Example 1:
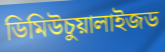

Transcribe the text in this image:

ডিমিউচুয়ালাইজড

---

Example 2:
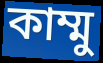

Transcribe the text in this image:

কাম্মু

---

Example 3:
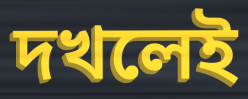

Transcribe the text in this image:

দখলেই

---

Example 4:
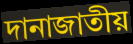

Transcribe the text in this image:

দানাজাতীয়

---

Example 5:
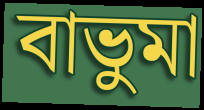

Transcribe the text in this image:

বাভুমা